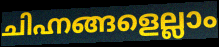
ചിഹ്നങ്ങളെല്ലാം